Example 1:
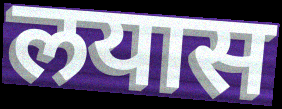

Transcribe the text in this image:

लयास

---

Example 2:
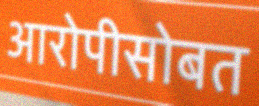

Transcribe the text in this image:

आरोपीसोबत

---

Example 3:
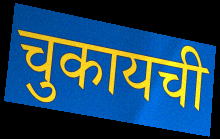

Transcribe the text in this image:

चुकायची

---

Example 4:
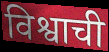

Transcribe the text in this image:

विश्वाची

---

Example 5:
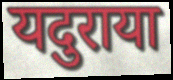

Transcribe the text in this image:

यदुराया